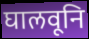
घालवूनि